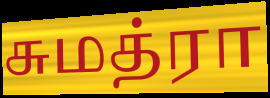
சுமத்ரா